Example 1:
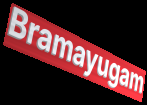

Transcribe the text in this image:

Bramayugam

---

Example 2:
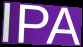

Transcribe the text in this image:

IPA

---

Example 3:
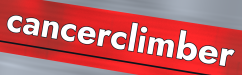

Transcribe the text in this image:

cancerclimber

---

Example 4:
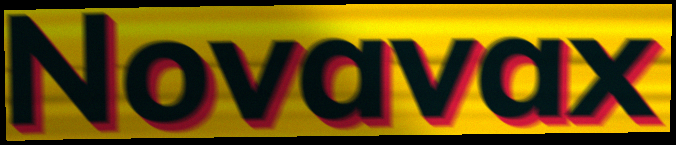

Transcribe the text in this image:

Novavax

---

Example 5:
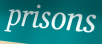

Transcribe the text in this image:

prisons